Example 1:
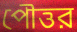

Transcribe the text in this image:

পৌত্তর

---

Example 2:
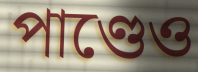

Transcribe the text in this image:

পাণ্ডেও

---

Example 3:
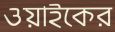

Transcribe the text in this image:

ওয়াইকের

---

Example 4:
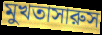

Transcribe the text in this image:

মুখতাসারুস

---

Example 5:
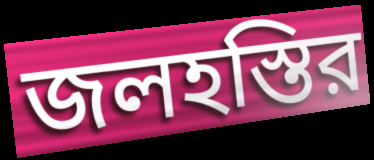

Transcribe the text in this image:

জলহস্তির